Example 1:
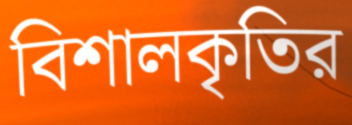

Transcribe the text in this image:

বিশালকৃতির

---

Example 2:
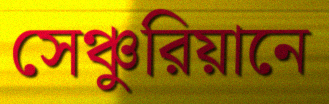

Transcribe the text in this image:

সেঞ্চুরিয়ানে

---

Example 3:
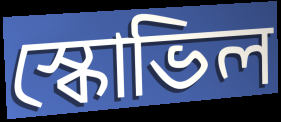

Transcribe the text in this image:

স্কোভিল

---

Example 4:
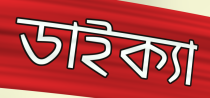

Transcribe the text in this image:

ডাইক্যা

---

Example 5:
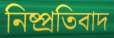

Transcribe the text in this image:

নিষ্প্রতিবাদ